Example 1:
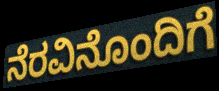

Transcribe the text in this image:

ನೆರವಿನೊಂದಿಗೆ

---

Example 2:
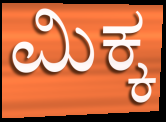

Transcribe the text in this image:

ಮಿಕ್ಕ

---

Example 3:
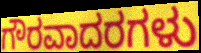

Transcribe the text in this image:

ಗೌರವಾದರಗಳು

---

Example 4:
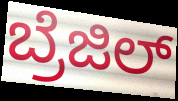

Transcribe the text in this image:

ಬ್ರೆಜಿಲ್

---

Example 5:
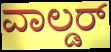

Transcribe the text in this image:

ವಾಲ್ಡರ್